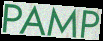
PAMP